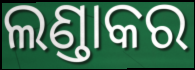
ଲଣ୍ଡାକର